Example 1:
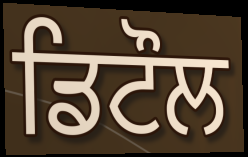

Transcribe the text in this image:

ਡਿਟੌਲ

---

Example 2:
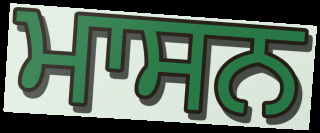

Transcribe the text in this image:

ਮਾਸਨ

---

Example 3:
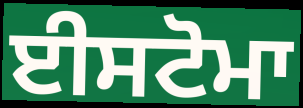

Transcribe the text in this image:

ਈਸਟੋਮਾ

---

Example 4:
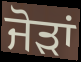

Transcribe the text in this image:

ਜੋਡ਼ਾਂ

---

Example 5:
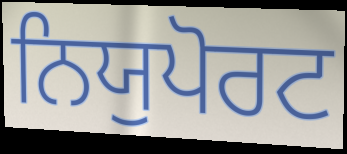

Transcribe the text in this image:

ਨਿਯੁਪੋਰਟ